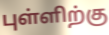
புள்ளிற்கு